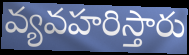
వ్యవహరిస్తారు